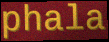
phala